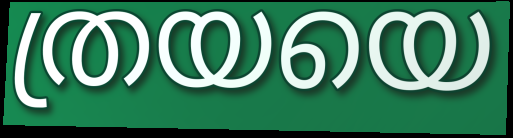
ത്രയയെ